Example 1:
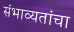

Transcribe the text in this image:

संभाव्यतांचा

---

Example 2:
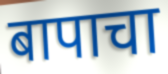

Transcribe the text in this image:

बापाचा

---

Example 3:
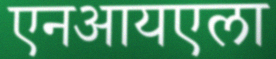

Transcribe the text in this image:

एनआयएला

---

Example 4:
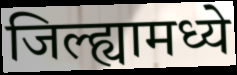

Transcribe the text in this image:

जिल्ह्यामध्ये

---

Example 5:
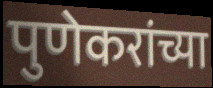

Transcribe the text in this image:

पुणेकरांच्या